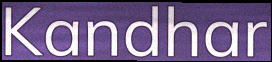
Kandhar